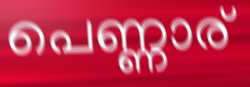
പെണ്ണാര്